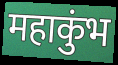
महाकुंभ